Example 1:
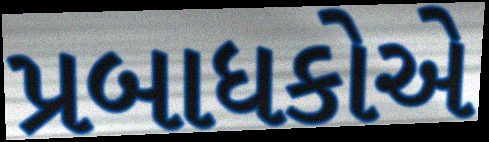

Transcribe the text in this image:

પ્રબાધકોએ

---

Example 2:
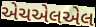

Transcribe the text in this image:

એચએલએલ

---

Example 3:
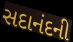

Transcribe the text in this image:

સદાનંદની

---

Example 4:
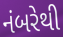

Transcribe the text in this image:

નંબરેથી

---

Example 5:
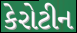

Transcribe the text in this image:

કેરોટીન